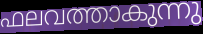
ഫലവത്താകുന്നു